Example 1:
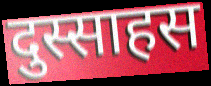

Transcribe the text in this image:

दुस्साहस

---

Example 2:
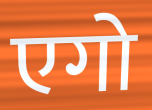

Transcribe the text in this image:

एगो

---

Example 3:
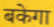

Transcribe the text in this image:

बकेगा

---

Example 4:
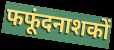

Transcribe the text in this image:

फफूंदनाशकों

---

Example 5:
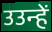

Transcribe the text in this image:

उउन्हें